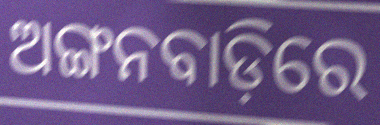
ଅଙ୍ଗନବାଡ଼ିରେ